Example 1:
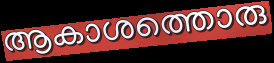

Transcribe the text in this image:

ആകാശത്തൊരു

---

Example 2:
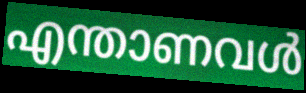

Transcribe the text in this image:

എന്താണവൾ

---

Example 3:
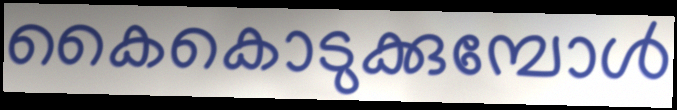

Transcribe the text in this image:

കൈകൊടുക്കുമ്പോൾ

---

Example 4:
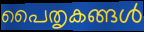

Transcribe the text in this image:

പൈതൃകങ്ങൾ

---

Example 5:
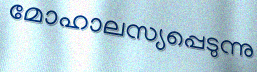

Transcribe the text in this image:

മോഹാലസ്യപ്പെടുന്നു